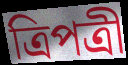
ত্রিপত্রী